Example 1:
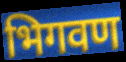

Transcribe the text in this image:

भिगवण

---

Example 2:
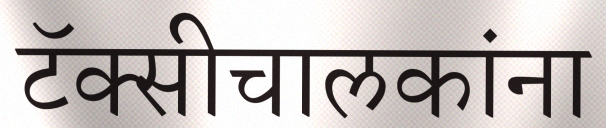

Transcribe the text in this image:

टॅक्सीचालकांना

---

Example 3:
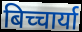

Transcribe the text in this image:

बिच्चार्या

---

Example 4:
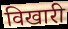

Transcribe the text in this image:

विखारी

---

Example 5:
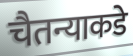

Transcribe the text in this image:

चैतन्याकडे